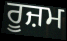
ਰੂਜ਼ਮ